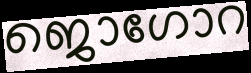
ജൊഗോറ